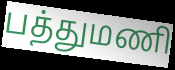
பத்துமணி